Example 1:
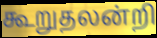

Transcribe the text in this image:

கூறுதலன்றி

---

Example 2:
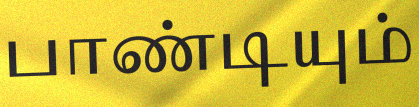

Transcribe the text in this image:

பாண்டியும்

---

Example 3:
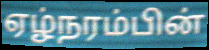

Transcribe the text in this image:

ஏழ்நரம்பின்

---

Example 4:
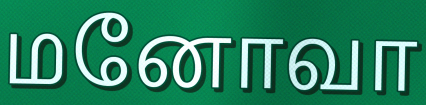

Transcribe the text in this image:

மனோவா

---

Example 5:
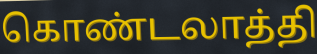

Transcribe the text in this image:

கொண்டலாத்தி